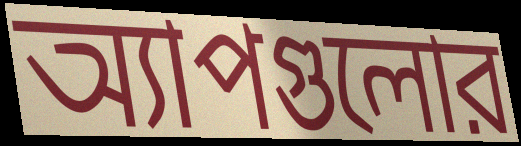
অ্যাপগুলোর